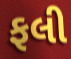
ફલી